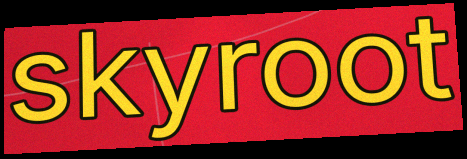
skyroot